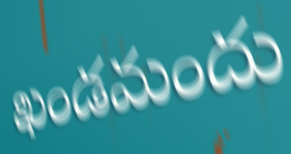
ఖండమందు